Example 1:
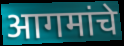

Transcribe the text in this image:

आगमांचे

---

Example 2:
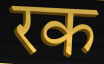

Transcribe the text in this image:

रक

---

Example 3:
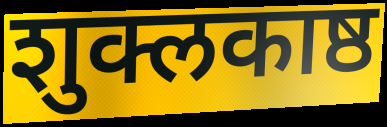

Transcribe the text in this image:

शुक्लकाष्ठ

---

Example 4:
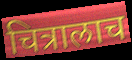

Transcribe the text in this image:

चित्रालाच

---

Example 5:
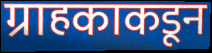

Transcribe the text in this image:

ग्राहकाकडून